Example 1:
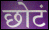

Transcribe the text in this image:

छोटं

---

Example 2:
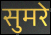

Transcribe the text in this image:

सुमरे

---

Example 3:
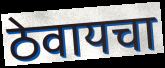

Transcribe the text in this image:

ठेवायचा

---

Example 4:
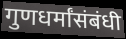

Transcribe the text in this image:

गुणधर्मांसंबंधी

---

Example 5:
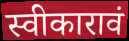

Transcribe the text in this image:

स्वीकारावं